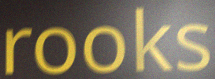
rooks